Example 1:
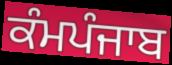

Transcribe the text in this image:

ਕੰਮਪੰਜਾਬ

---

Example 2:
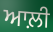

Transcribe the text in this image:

ਆਲ਼ੀ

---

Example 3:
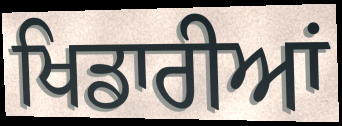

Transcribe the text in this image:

ਖਿਡਾਰੀਆਂ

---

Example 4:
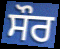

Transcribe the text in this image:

ਸੌਰ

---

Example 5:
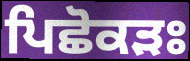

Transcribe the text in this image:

ਪਿਛੋਕੜਃ